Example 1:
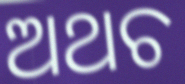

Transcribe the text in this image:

ଅଥଚ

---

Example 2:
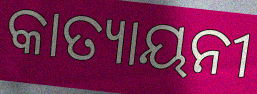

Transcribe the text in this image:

କାତ୍ୟାୟନୀ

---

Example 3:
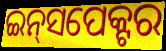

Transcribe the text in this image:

ଇନ୍‍ସପେକ୍ଟର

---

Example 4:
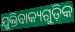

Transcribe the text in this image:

ଯୁକ୍ତିବାକ୍ୟଗୁଡ଼ିକ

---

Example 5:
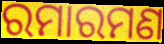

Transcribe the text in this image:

ରମାରମଣ